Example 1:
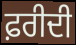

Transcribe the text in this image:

ਫ਼ਰੀਦੀ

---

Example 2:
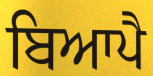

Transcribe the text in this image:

ਬਿਆਪੈ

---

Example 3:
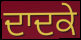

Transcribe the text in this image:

ਦਾਦਕੇ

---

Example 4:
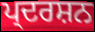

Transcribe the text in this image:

ਪ੍ਦਰਸ਼ਨ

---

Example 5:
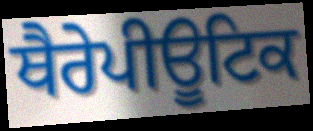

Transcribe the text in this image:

ਥੈਰੇਪੀਊਟਿਕ